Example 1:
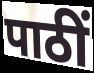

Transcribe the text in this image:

पाठीं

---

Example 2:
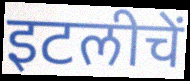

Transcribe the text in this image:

इटलीचें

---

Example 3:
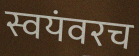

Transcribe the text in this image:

स्वयंवरच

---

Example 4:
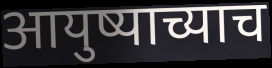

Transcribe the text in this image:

आयुष्याच्याच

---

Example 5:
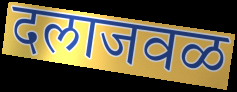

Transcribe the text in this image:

दलाजवळ